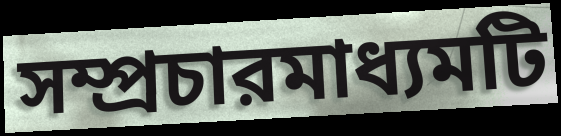
সম্প্রচারমাধ্যমটি